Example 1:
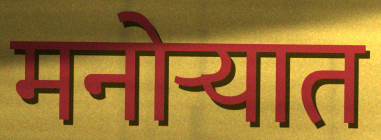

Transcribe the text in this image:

मनोऱ्यात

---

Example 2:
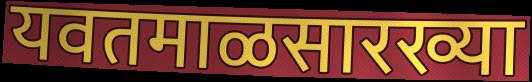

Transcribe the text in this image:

यवतमाळसारख्या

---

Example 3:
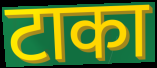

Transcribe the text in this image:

टाका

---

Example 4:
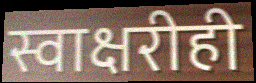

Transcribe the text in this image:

स्वाक्षरीही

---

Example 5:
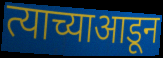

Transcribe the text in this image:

त्याच्याआडून